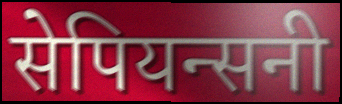
सेपियन्सनी